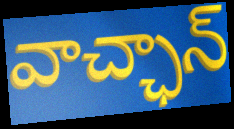
వాచ్ఛాన్